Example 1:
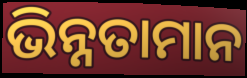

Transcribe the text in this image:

ଭିନ୍ନତାମାନ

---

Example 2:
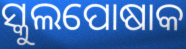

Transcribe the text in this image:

ସ୍କୁଲପୋଷାକ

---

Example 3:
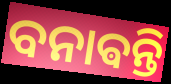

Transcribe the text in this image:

ବନାଵନ୍ତି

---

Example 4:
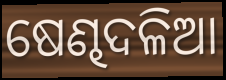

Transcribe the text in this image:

ଷେଣ୍ଢଦଳିଆ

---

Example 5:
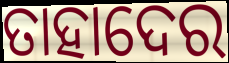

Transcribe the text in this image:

ତାହାଦେର